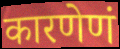
कारणेणं